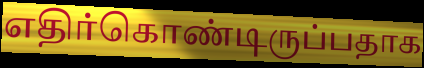
எதிர்கொண்டிருப்பதாக